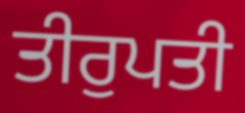
ਤੀਰੁਪਤੀ